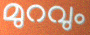
മുറവും